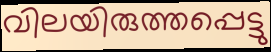
വിലയിരുത്തപ്പെട്ടു